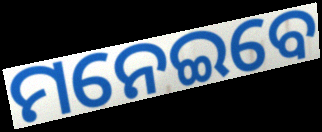
ମନେଇବେ